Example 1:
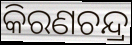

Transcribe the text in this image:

କିରଣଚନ୍ଦ୍ର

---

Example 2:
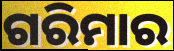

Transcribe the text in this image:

ଗରିମାର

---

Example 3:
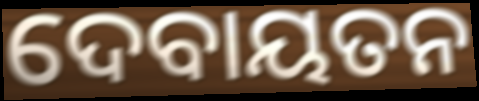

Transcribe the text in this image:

ଦେବାୟତନ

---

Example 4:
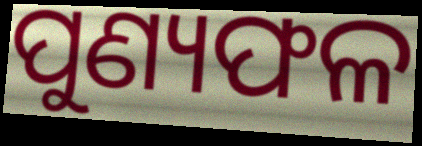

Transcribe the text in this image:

ପୁଣ୍ୟଫଳ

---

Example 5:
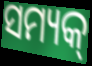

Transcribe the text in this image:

ସମ୍ୟକ୍